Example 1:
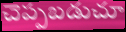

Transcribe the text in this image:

చెప్పబడుచూ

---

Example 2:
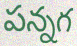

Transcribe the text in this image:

పన్నగ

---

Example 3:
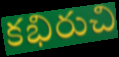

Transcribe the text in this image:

కభిరుచి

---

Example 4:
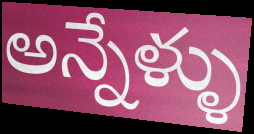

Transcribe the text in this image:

అన్నేళ్ళు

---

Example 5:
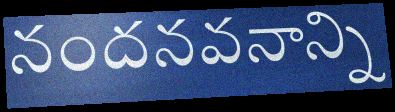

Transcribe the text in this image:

నందనవనాన్ని